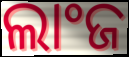
ଲାଂଜ